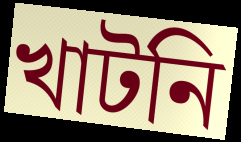
খাটনি